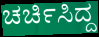
ಚರ್ಚಿಸಿದ್ದ